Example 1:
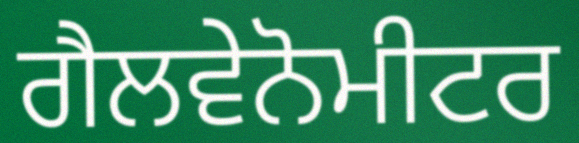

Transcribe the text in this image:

ਗੈਲਵੇਨੋਮੀਟਰ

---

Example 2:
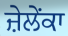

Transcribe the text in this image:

ਜ਼ੇਲੇਂਕਾ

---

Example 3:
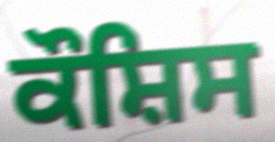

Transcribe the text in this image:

ਕੌਸ਼ਿਸ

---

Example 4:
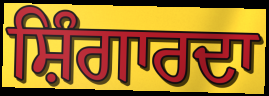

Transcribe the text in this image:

ਸ਼ਿੰਗਾਰਦਾ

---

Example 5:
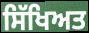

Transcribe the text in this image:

ਸਿੱਖਿਅਤ